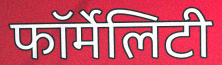
फॉर्मेलिटी